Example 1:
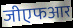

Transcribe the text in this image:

जीएफआर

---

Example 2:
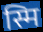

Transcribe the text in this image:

स्मि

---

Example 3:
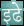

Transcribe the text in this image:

इढे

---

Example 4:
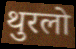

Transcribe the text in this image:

थुरलो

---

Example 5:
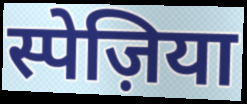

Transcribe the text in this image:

स्पेज़िया